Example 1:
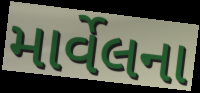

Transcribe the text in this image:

માર્વેલના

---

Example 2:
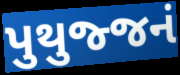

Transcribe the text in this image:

પુથુજ્જનં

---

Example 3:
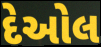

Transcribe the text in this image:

દેઓલ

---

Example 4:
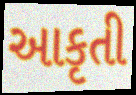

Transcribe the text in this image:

આકૃતી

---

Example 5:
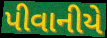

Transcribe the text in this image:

પીવાનીયે